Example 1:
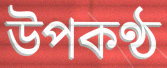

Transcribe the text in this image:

উপকণ্ঠ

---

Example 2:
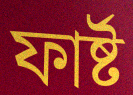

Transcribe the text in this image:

ফাৰ্ষ্ট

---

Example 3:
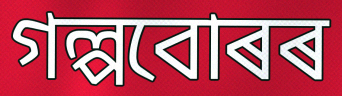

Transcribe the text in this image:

গল্পবোৰৰ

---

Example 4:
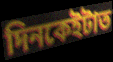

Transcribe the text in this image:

দিনকেইটাত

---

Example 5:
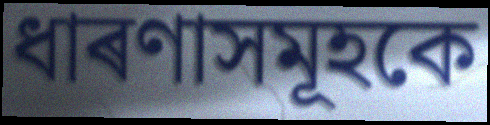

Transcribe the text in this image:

ধাৰণাসমূহকে